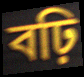
বঢ়ি